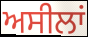
ਅਸੀਲਾਂ